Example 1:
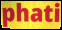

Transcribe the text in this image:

phati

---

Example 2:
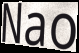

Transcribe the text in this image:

Nao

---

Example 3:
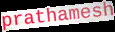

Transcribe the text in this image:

prathamesh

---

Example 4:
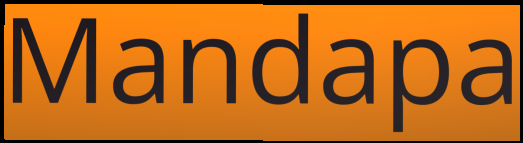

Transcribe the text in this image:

Mandapa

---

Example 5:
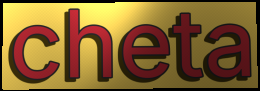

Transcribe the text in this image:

cheta